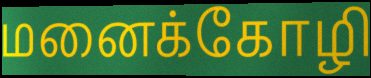
மனைக்கோழி